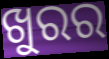
ଖୁରର